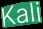
Kali